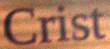
Crist